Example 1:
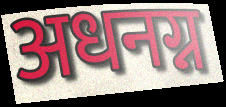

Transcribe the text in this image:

अधनग्न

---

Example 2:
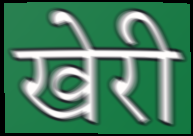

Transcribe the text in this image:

खेरी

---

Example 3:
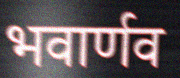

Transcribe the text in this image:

भवार्णव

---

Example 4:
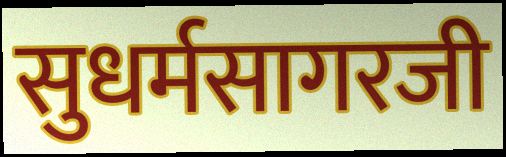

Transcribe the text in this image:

सुधर्मसागरजी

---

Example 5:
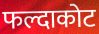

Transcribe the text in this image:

फल्दाकोट